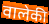
वालेकी